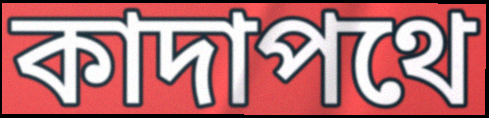
কাদাপথে